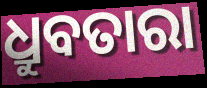
ଧ୍ରୁବତାରା